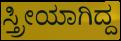
ಸ್ತ್ರೀಯಾಗಿದ್ದ